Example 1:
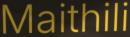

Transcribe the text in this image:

Maithili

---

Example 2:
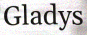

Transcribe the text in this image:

Gladys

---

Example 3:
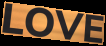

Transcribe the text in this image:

LOVE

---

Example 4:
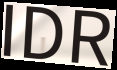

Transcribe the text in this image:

IDR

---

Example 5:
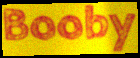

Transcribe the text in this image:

Booby